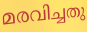
മരവിച്ചതു